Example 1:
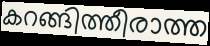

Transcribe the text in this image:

കറങ്ങിത്തീരാത്ത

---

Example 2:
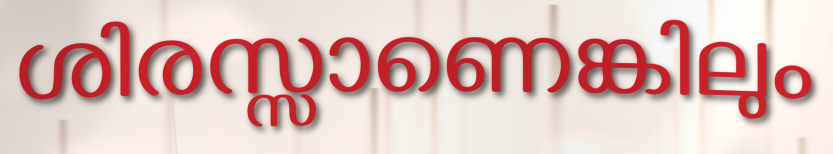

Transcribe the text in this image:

ശിരസ്സാണെങ്കിലും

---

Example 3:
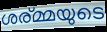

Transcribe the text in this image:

ശര്മ്മയുടെ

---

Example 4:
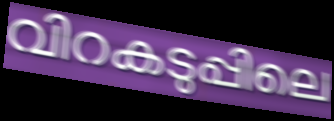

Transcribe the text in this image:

വിറകടുപ്പിലെ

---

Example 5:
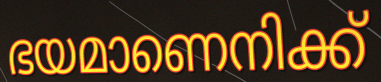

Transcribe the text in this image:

ഭയമാണെനിക്ക്